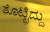
ತೊಟ್ಟಿದ್ದು